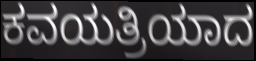
ಕವಯತ್ರಿಯಾದ